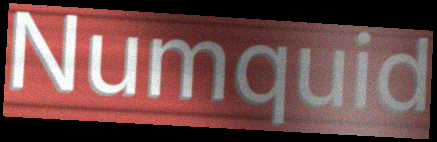
Numquid